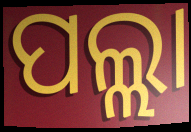
ପଲ୍ଲା